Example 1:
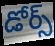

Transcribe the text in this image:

డోర్స్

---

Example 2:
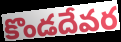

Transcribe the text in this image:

కొండదేవర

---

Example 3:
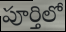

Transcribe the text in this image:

పూర్తిలో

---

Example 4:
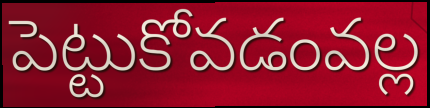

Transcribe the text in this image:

పెట్టుకోవడంవల్ల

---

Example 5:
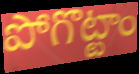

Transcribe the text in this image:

పోగొట్టాం